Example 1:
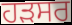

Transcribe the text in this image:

ਹੜਸਰ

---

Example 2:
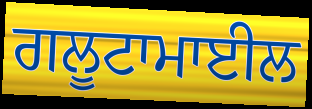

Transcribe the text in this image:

ਗਲੂਟਾਮਾਈਲ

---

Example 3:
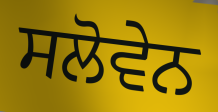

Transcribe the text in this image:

ਸਲੋਵੇਨ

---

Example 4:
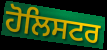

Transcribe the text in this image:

ਹੋਲਿਸਟਰ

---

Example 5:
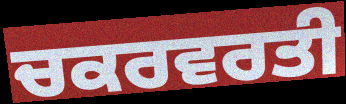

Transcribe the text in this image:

ਚਕਰਵਰਤੀ